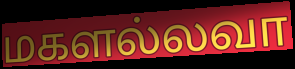
மகளல்லவா